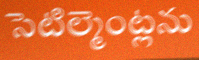
సెటిల్మెంట్లను